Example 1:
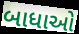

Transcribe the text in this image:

બાધાઓ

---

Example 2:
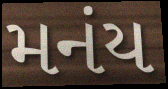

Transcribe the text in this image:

મનંય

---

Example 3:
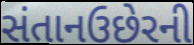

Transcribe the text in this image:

સંતાનઉછેરની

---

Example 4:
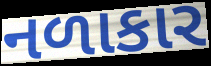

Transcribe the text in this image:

નળાકાર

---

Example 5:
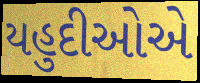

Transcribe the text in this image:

યહુદીઓએ